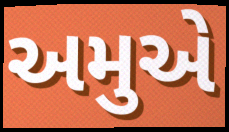
અમુએ